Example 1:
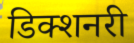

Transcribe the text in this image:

डिक्शनरी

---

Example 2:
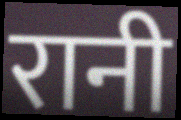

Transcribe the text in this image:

रानी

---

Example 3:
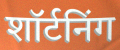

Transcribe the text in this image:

शॉर्टनिंग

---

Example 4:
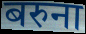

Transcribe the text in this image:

बरुना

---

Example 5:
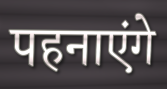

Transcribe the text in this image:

पहनाएंगे